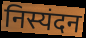
निस्यंदन